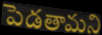
పెడతామని